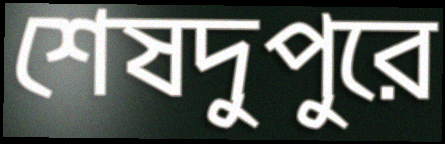
শেষদুপুরে